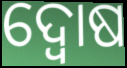
ଦ୍ୱୋଷ